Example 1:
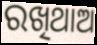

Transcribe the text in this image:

ରଖିଥାଅ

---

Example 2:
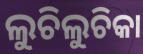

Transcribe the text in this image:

ଲୁଚିଲୁଚିକା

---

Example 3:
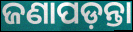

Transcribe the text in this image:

ଜଣାପଡ଼ନ୍ତା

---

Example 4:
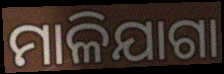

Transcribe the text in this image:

ମାଳିଯାଗା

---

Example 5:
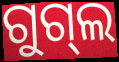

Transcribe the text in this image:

ଗୁଗ୍‌ଲ